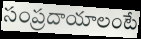
సంప్రదాయాలంటే